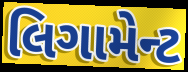
લિગામેન્ટ